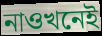
নাওখনেই